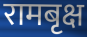
रामबृक्ष